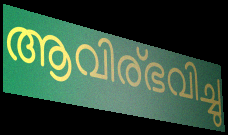
ആവിര്ഭവിച്ചു